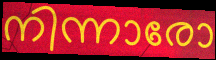
നിന്നാരോ